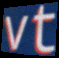
vt